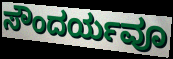
ಸೌಂದರ್ಯವೂ